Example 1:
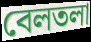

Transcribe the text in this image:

বেলতলা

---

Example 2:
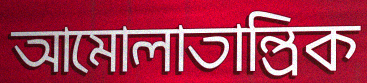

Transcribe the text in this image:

আমোলাতান্ত্ৰিক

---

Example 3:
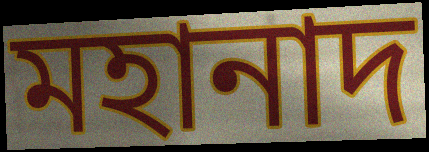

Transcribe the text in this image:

মহানাদ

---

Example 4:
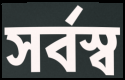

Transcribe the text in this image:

সৰ্বস্ব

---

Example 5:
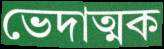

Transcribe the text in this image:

ভেদাত্মক